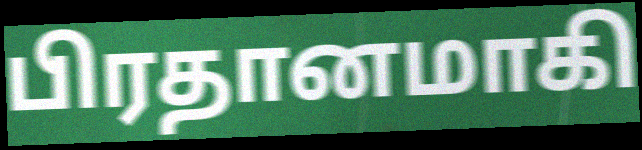
பிரதானமாகி